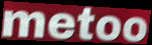
metoo